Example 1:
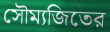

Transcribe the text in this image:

সৌম্যজিতের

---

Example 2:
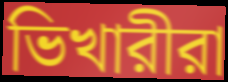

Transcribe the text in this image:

ভিখারীরা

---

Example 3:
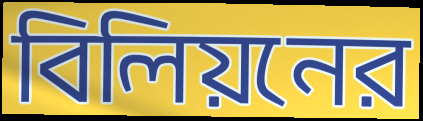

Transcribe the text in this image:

বিলিয়নের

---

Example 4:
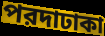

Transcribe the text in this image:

পরদাঢাকা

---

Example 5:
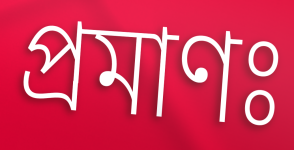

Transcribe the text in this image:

প্রমাণঃ